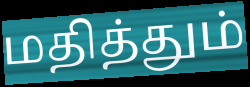
மதித்தும்